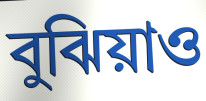
বুঝিয়াও